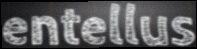
entellus